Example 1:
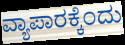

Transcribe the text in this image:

ವ್ಯಾಪಾರಕ್ಕೆಂದು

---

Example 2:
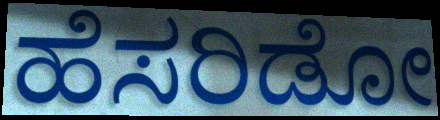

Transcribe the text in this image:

ಹೆಸರಿಡೋ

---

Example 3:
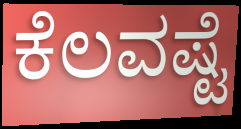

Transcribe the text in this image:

ಕೆಲವಷ್ಟೆ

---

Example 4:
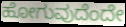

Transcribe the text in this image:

ಹೋಗುವುದೆಂದೇ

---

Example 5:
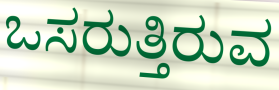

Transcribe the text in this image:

ಒಸರುತ್ತಿರುವ